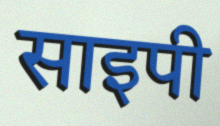
साइपी